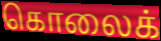
கொலைக்